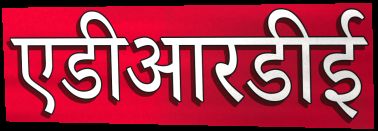
एडीआरडीई